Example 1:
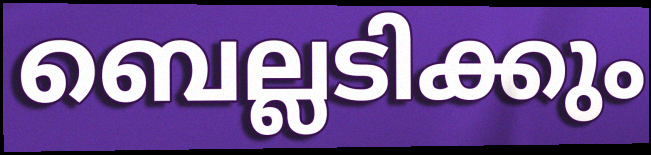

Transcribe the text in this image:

ബെല്ലടിക്കും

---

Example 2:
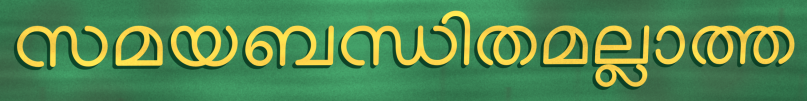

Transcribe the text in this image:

സമയബന്ധിതമല്ലാത്ത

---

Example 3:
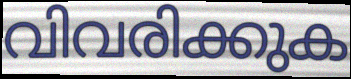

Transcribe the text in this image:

വിവരിക്കുക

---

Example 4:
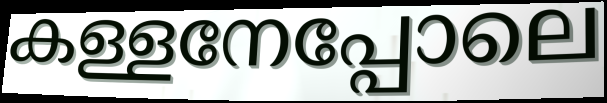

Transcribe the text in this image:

കള്ളനേപ്പോലെ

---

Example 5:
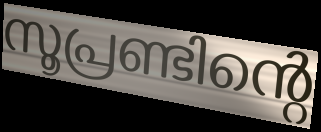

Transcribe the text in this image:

സൂപ്രണ്ടിന്റെ